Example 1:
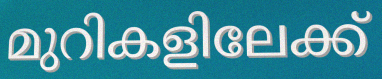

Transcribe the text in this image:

മുറികളിലേക്ക്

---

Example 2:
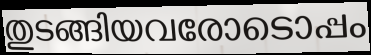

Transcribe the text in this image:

തുടങ്ങിയവരോടൊപ്പം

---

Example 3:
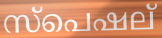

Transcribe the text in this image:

സ്പെഷല്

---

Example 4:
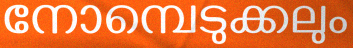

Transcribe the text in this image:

നോമ്പെടുക്കലും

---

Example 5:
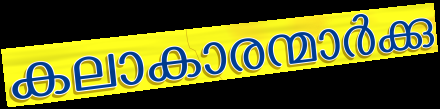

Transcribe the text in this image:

കലാകാരന്മാർക്കു